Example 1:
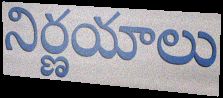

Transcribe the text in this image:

నిర్ణయాలు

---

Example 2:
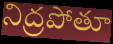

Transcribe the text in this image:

నిద్రపోతూ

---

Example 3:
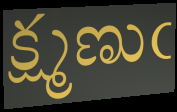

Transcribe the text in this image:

క్ష్మణుఁ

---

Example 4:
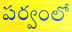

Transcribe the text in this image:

పర్వంలో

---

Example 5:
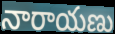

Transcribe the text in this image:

నారాయణు